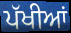
ਪੱਖੀਆਂ